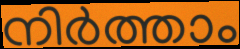
നിർത്താം